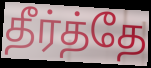
தீர்த்தே